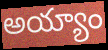
అయ్యాం